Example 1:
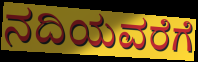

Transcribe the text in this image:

ನದಿಯವರೆಗೆ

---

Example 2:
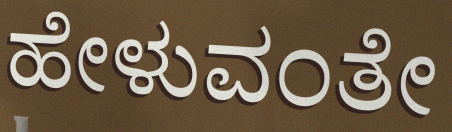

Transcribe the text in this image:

ಹೇಳುವಂತೇ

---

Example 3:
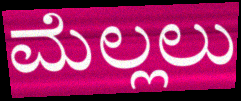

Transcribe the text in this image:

ಮೆಲ್ಲಲು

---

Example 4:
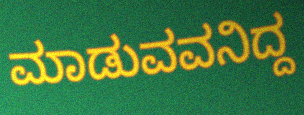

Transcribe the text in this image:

ಮಾಡುವವನಿದ್ದ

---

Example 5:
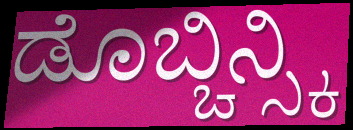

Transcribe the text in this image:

ಡೊಬ್ಚಿನ್ಸ್ಕಿ